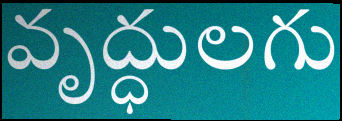
వృద్ధులగు